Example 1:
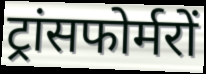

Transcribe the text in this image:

ट्रांसफोर्मरों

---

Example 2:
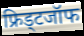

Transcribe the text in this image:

फ्रिड्टजॉफ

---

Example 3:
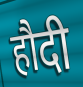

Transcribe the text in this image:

हौदी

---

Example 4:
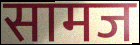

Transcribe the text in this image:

सामज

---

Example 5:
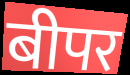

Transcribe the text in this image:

बीपर